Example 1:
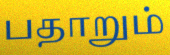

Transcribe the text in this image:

பதாறும்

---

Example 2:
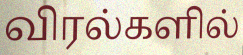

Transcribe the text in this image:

விரல்களில்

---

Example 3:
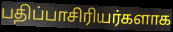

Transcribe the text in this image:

பதிப்பாசிரியர்களாக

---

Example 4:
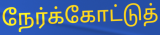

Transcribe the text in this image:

நேர்க்கோட்டுத்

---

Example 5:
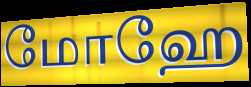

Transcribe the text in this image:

மோஹே